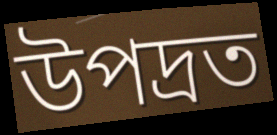
উপদ্রত